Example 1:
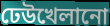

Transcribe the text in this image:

ঢেউখেলানো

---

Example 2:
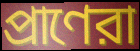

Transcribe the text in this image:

প্রাণেরা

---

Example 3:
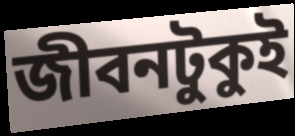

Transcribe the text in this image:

জীবনটুকুই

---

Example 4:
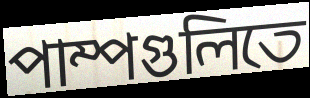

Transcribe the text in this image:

পাম্পগুলিতে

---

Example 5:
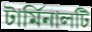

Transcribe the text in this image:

টার্মিনালটি